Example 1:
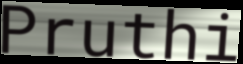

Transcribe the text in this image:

Pruthi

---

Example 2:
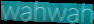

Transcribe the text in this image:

wahwah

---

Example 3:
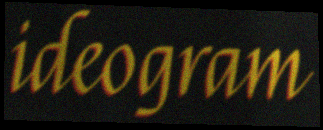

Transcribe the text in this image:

ideogram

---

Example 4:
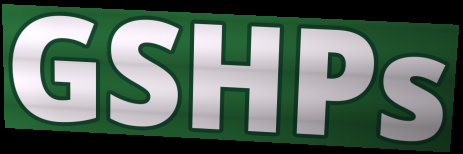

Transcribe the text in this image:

GSHPs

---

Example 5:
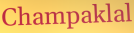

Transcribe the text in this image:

Champaklal